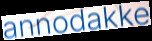
annodakke